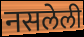
नसलेली